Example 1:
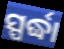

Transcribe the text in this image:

ସ୍ପର୍ଦ୍ଧା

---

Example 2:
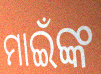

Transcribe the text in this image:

ମାଇଁଙ୍କ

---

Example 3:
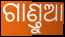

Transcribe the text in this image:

ଗାଣ୍ତୁଆ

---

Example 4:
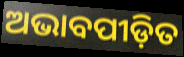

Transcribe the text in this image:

ଅଭାବପୀଡ଼ିତ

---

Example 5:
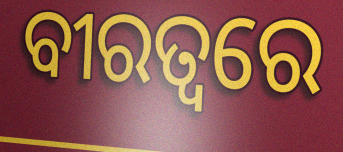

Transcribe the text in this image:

ବୀରତ୍ୱରେ